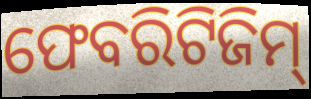
ଫେବରିଟିଜିମ୍